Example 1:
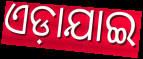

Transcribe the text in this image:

ଏଡ଼ାଯାଇ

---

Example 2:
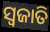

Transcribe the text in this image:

ସ୍ୱଜାତି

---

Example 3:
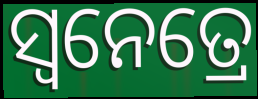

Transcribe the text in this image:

ସ୍ୱନେତ୍ରେ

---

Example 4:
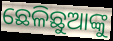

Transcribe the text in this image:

ଛେଳିଛୁଆଙ୍କୁ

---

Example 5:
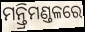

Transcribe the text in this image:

ମନ୍ତ୍ରିମଣ୍ଡଳରେ